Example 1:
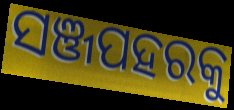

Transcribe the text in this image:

ସଞ୍ଜପହରକୁ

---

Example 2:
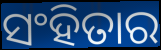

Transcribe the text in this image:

ସଂହିତାର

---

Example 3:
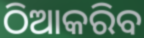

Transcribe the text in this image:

ଠିଆକରିବ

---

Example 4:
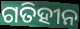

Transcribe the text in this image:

ଗତିହୀନ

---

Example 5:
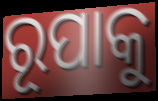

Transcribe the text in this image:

ରୂପାକୁ